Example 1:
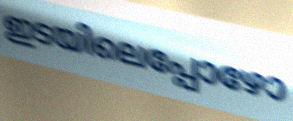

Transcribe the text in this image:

ഇടയിലെപ്പോഴോ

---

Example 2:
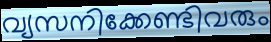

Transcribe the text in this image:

വ്യസനിക്കേണ്ടിവരും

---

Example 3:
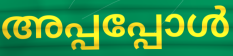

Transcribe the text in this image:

അപ്പപ്പോൾ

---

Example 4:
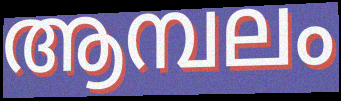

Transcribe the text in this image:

ആമ്പലം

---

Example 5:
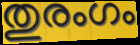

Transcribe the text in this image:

തുരംഗം